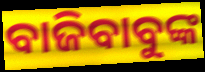
ବାଜିବାବୁଙ୍କ